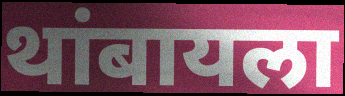
थांबायला